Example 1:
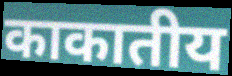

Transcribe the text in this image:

काकातीय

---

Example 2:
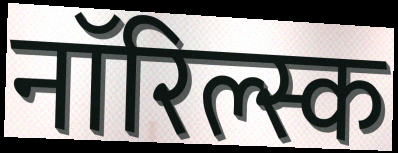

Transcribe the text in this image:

नॉरिल्स्क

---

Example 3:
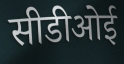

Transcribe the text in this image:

सीडीओई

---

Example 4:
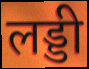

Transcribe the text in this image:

लड्डी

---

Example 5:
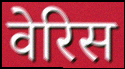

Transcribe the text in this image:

वेरिस